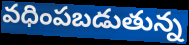
వధింపబడుతున్న